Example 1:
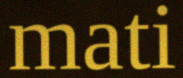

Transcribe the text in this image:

mati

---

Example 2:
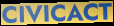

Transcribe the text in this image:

CIVICACT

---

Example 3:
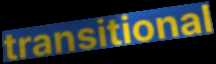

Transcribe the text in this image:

transitional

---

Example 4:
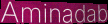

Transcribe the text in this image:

Aminadab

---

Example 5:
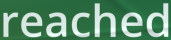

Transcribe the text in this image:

reached